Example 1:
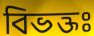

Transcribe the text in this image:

বিভক্তঃ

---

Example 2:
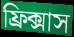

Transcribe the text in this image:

ফ্রিক্সাস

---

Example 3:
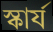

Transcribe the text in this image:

স্কার্য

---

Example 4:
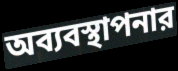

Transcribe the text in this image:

অব্যবস্থাপনার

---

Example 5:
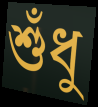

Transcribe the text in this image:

শুঁধু